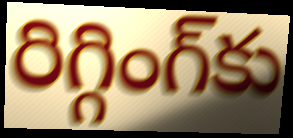
రిగ్గింగ్‌కు